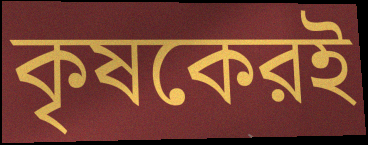
কৃষকেরই